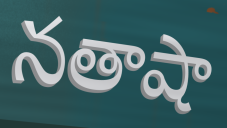
నతాషా